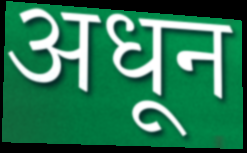
अधून